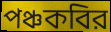
পঞ্চকবির